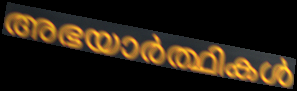
അഭയാർത്ഥികൾ